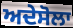
ਅਦੇਸੋਲਾ